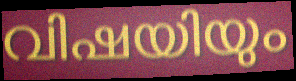
വിഷയിയും